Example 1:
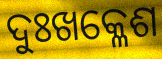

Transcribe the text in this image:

ଦୁଃଖକ୍ଳେଶ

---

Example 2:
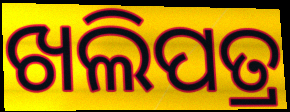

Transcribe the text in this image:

ଖଲିପତ୍ର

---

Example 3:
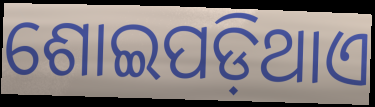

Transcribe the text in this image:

ଶୋଇପଡ଼ିଥାଏ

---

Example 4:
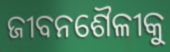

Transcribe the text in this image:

ଜୀବନଶୈଳୀକୁ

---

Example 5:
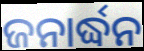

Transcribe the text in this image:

ଜନାର୍ଦ୍ଧନ